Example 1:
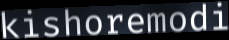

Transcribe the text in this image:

kishoremodi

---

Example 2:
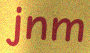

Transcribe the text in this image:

jnm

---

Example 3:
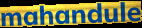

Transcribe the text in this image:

mahandule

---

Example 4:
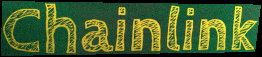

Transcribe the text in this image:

Chainlink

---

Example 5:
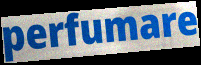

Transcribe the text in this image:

perfumare